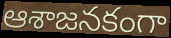
ఆశాజనకంగా